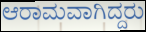
ಆರಾಮವಾಗಿದ್ದರು